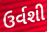
ઉર્વશી